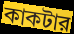
কাকটার